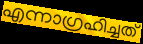
എന്നാഗ്രഹിച്ചത്